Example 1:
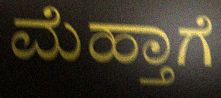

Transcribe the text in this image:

ಮೆಹ್ತಾಗೆ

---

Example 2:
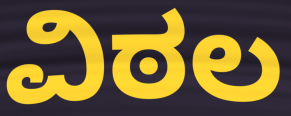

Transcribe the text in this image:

ವಿಠಲ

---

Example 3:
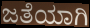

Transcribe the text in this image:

ಜತೆಯಾಗಿ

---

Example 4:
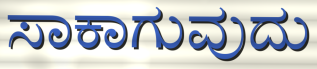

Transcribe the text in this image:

ಸಾಕಾಗುವುದು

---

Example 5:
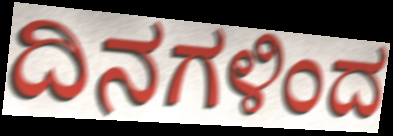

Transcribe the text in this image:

ದಿನಗಳಿಂದ